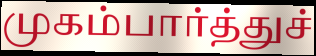
முகம்பார்த்துச்